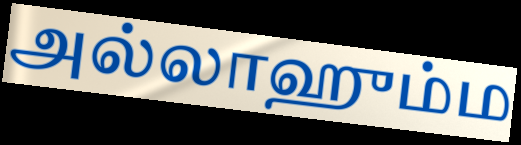
அல்லாஹும்ம